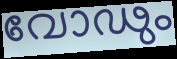
വോഢും